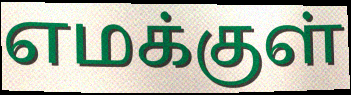
எமக்குள்